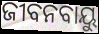
ଜୀବନବାୟୁ